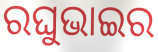
ରଘୁଭାଇର